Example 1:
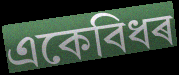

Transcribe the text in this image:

একেবিধৰ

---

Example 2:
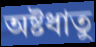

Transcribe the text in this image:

অষ্টধাতু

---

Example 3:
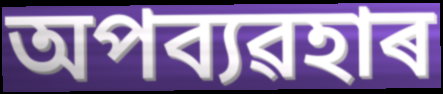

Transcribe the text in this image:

অপব্যৱহাৰ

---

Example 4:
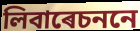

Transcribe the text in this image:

লিবাৰেচননে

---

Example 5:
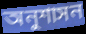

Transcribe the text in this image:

অনুশাসন